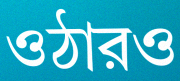
ওঠারও